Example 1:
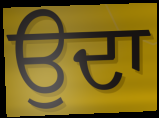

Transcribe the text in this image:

ਉਦਾ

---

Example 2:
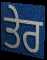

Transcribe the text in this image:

ਤੇਰ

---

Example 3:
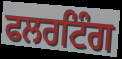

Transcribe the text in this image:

ਫਲਰਟਿੰਗ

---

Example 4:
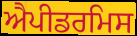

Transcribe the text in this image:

ਐਪੀਡਰਮਿਸ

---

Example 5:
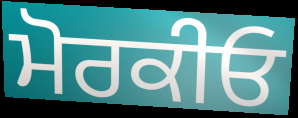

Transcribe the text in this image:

ਮੋਰਕੀਓ